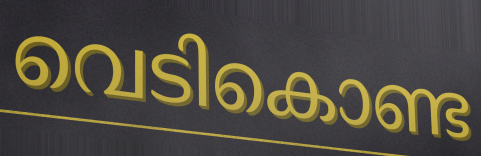
വെടികൊണ്ട